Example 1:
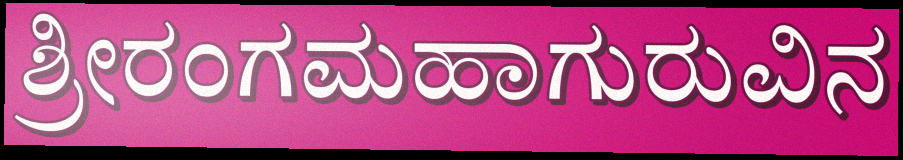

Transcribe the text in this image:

ಶ್ರೀರಂಗಮಹಾಗುರುವಿನ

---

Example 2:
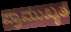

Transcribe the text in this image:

ಪ್ರಾಮುಖ್ಯತೆ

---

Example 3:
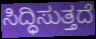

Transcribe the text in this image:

ಸಿದ್ಧಿಸುತ್ತದೆ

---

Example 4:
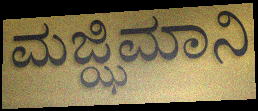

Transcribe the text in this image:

ಮಜ್ಝಿಮಾನಿ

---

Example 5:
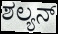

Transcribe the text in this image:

ಶಲ್ಯನ್